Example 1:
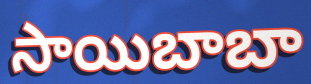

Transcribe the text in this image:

సాయిబాబా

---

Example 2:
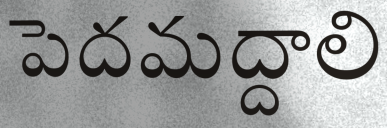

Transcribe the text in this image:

పెదమద్దాలి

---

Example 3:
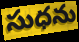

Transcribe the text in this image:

సుధను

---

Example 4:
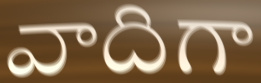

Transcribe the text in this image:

వాదిగా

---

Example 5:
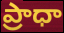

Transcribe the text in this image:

ప్రాధా